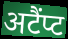
अटैंप्ट